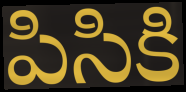
పిసికి